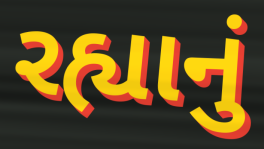
રહ્યાનું